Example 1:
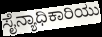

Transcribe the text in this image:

ಸೈನ್ಯಾಧಿಕಾರಿಯು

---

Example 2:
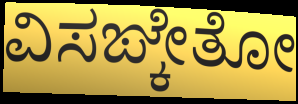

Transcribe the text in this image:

ವಿಸಙ್ಕೇತೋ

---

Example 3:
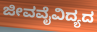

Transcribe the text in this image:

ಜೀವವೈವಿದ್ಯದ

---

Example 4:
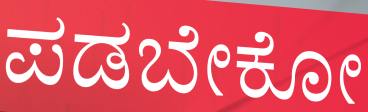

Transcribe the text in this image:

ಪಡಬೇಕೋ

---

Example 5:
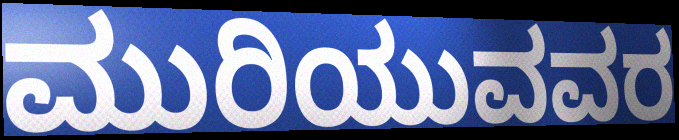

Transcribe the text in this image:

ಮುರಿಯುವವರ